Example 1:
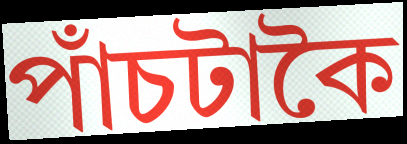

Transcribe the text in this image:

পাঁচটাকৈ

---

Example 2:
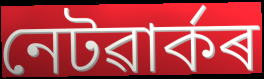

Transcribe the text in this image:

নেটৱাৰ্কৰ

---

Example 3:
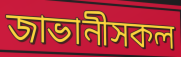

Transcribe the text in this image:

জাভানীসকল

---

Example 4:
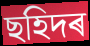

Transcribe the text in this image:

ছহিদৰ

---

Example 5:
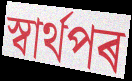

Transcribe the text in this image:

স্বাৰ্থপৰ